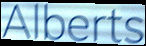
Alberts